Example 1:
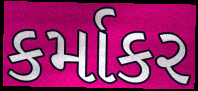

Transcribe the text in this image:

કર્માકર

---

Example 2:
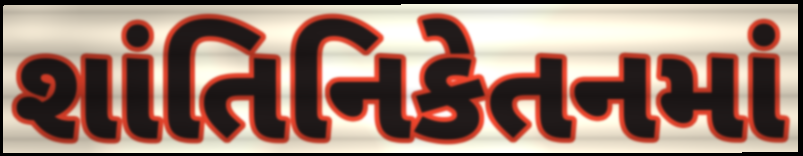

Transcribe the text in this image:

શાંતિનિકેતનમાં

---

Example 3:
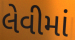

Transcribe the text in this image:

લેવીમાં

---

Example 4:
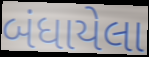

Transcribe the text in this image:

બંધાયેલા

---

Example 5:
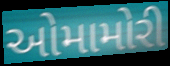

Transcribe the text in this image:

ઓમામોરી